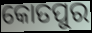
କୋତପୁର